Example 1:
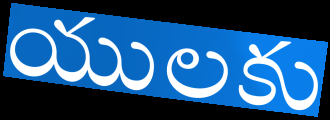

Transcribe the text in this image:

యులకు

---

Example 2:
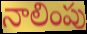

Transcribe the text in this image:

నాలింపు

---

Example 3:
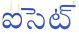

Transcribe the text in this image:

ఐసెట్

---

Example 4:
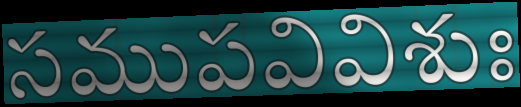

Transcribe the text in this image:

సముపవివిశుః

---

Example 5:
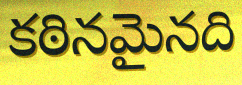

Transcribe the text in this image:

కఠినమైనది